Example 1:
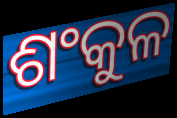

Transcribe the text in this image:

ଶଂକୁଳ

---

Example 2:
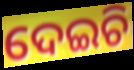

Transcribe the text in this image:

ଦେଇଚି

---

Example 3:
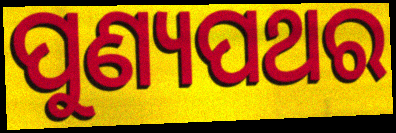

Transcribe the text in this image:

ପୁଣ୍ୟପଥର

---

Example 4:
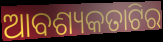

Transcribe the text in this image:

ଆବଶ୍ୟକତାଟିର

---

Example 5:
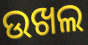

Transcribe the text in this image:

ଉଖଲ